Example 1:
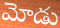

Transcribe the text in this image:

మోడు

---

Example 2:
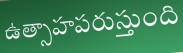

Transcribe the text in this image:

ఉత్సాహపరుస్తుంది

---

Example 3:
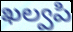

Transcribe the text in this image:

ఖల్వపి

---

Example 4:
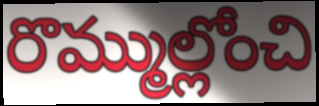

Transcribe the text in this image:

రొమ్ముల్లోంచి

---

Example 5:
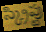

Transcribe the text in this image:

స్క్రిప్టు